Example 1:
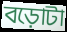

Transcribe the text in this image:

বড়োটা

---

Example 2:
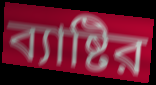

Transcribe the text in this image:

ব্যাষ্টির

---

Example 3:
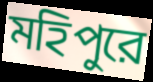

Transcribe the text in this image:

মহিপুরে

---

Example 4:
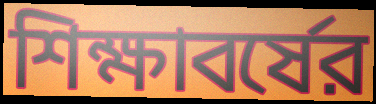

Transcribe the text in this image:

শিক্ষাবর্ষের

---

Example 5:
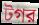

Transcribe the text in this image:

টগর